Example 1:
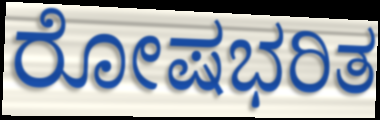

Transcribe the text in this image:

ರೋಷಭರಿತ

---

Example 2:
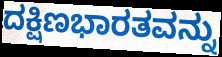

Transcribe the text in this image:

ದಕ್ಷಿಣಭಾರತವನ್ನು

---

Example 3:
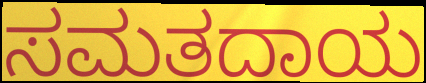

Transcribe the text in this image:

ಸಮತದಾಯ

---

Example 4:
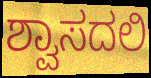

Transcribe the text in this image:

ಶ್ವಾಸದಲಿ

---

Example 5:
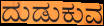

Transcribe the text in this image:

ದುಡುಕುವ